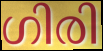
ഗിരി